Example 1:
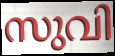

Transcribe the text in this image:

സുവി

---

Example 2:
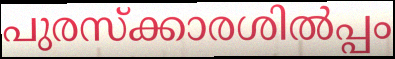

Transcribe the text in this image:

പുരസ്ക്കാരശിൽപ്പം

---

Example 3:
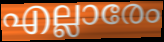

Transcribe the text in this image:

എല്ലാരേം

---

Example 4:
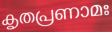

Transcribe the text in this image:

കൃതപ്രണാമഃ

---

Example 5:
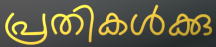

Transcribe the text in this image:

പ്രതികൾക്കു